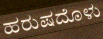
ಹರುಷದೊಳು